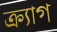
ক্র্যাগ